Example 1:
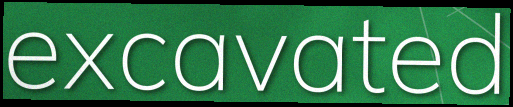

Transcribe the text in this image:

excavated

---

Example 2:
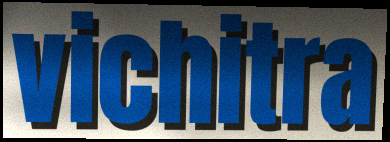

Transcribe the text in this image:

vichitra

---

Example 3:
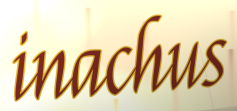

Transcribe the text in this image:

inachus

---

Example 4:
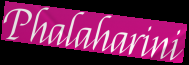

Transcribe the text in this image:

Phalaharini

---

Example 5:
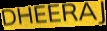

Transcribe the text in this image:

DHEERAJ